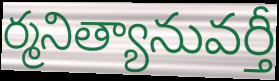
ర్మనిత్యానువర్తీ